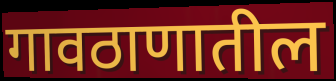
गावठाणातील